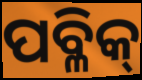
ପବ୍ଳିକ୍